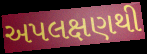
અપલક્ષણથી